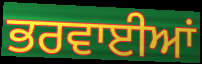
ਭਰਵਾਈਆਂ